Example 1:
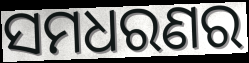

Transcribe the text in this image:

ସମଧରଣର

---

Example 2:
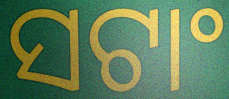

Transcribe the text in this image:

ସଟାଂ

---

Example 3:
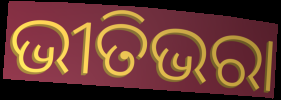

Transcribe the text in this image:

ଭୀତିଭରା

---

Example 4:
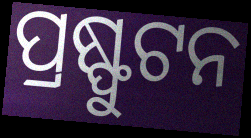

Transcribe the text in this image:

ପ୍ରଷ୍ଫୁଟନ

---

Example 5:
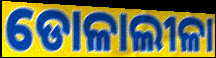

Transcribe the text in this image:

ଡୋଳାଲୀଳା